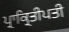
ਪ੍ਰਾਕ੍ਰਿਤੀਪਤੀ